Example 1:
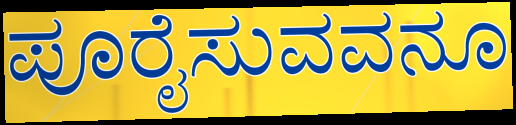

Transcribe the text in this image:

ಪೂರೈಸುವವನೂ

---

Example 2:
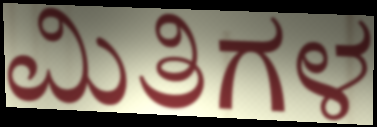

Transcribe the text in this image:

ಮಿತಿಗಳ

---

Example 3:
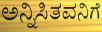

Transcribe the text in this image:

ಅನ್ನಿಸಿತವನಿಗೆ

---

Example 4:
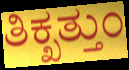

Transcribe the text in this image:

ತಿಕ್ಖತ್ತುಂ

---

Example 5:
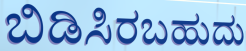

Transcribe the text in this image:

ಬಿಡಿಸಿರಬಹುದು